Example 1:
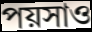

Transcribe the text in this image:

পয়সাও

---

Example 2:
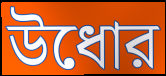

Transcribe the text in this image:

উধোর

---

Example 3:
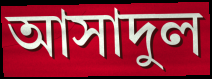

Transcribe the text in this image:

আসাদুল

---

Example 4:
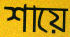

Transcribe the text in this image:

শায়ে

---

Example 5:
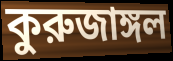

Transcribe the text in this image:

কুরুজাঙ্গল